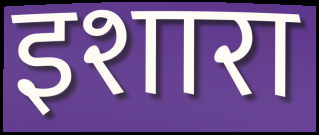
इशारा